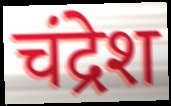
चंद्रेश